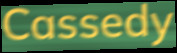
Cassedy